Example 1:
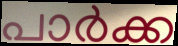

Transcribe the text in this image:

പാർക്ക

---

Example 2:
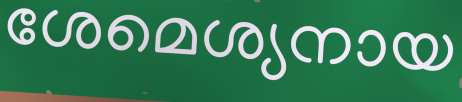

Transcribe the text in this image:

ശേമെശ്യനായ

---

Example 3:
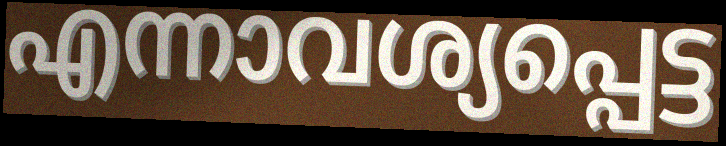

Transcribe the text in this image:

എന്നാവശ്യപ്പെട്ട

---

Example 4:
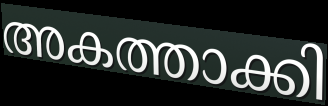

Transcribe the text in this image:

അകത്താക്കി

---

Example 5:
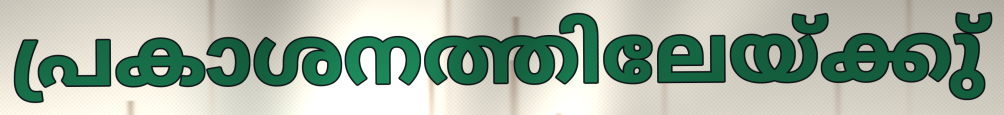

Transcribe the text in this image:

പ്രകാശനത്തിലേയ്ക്കു്